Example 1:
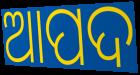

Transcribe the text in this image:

ଆପଦ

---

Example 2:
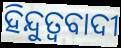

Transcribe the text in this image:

ହିନ୍ଦୁତ୍ବବାଦୀ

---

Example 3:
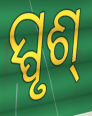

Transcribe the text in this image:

ସ୍ପୃଶ୍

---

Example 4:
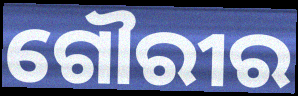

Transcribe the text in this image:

ଗୌରୀର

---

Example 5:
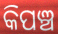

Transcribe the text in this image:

କିପଞ୍ଚ